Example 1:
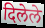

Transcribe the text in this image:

दिलेले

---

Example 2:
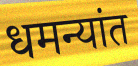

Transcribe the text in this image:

धमन्यांत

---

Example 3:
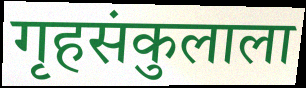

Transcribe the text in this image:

गृहसंकुलाला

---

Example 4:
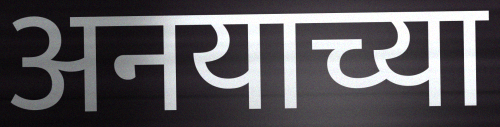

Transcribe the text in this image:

अनयाच्या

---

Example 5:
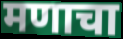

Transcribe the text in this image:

मणाचा